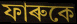
ফাৰুকে